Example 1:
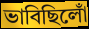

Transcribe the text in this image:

ভাবিছিলোঁ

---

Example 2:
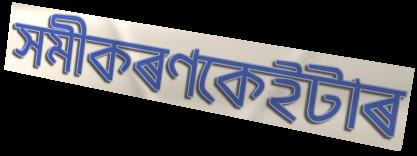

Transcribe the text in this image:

সমীকৰণকেইটাৰ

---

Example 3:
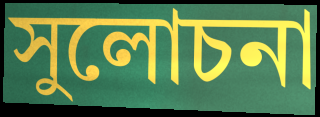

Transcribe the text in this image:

সুলোচনা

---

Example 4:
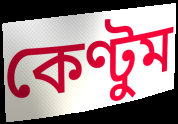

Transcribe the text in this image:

কেণ্টুম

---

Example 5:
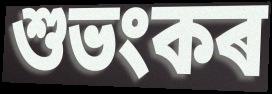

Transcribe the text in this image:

শুভংকৰ